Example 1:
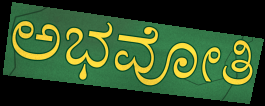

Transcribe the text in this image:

ಅಭವೋತಿ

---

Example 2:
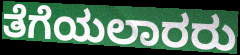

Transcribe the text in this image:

ತೆಗೆಯಲಾರರು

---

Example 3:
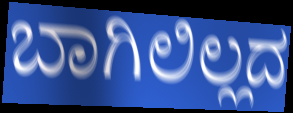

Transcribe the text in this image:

ಬಾಗಿಲಿಲ್ಲದ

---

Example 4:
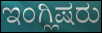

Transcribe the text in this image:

ಇಂಗ್ಲಿಷರು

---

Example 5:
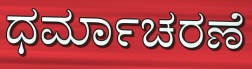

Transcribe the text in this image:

ಧರ್ಮಾಚರಣೆ